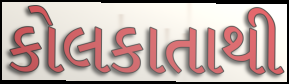
કોલકાતાથી